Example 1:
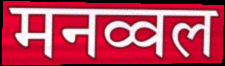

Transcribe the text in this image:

मनव्वल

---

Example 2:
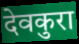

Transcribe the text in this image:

देवकुरा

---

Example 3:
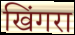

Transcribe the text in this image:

खिंगरा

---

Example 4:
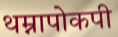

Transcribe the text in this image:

थम्नापोकपी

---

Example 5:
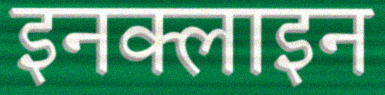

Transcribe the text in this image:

इनक्लाइन